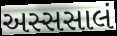
અસ્સસાલં